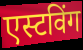
एस्टविंग